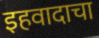
इहवादाचा